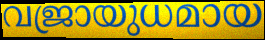
വജ്രായുധമായ